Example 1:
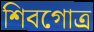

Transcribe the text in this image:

শিবগোত্র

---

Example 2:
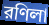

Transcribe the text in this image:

রণিলা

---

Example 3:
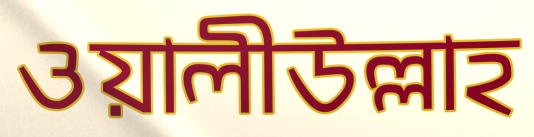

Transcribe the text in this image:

ওয়ালীউল্লাহ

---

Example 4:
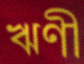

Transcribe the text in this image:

ঋণী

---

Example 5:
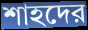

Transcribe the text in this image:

শাহদের